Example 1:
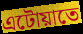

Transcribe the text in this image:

এটোয়াতে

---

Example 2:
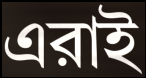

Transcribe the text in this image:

এরাই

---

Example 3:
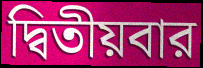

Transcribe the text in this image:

দ্বিতীয়বার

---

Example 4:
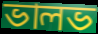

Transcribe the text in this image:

ভালভ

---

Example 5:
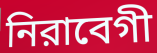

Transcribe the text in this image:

নিরাবেগী